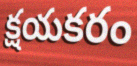
క్షయకరం